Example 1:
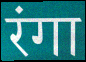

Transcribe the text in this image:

रंगा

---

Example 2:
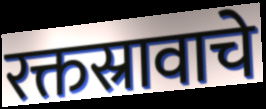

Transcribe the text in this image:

रक्तस्रावाचे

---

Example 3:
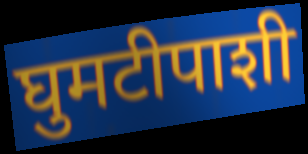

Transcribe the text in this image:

घुमटीपाशी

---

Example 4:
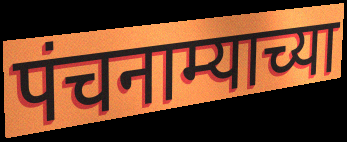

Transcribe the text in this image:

पंचनाम्याच्या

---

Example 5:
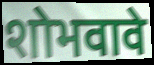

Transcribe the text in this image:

शोभवावे